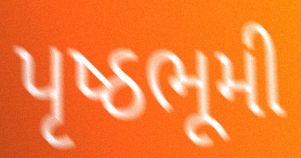
પૃષ્ઠભૂમી